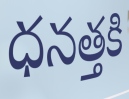
ధనత్తకి